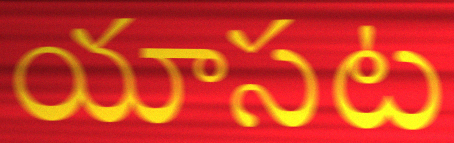
యాసట